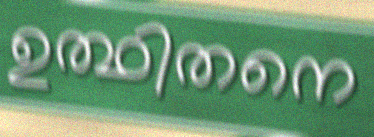
ഉത്ഥിതനെ